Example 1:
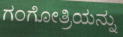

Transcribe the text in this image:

ಗಂಗೋತ್ರಿಯನ್ನು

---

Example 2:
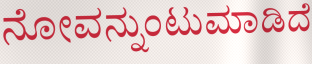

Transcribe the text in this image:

ನೋವನ್ನುಂಟುಮಾಡಿದೆ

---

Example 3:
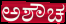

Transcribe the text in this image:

ಅಶೌಚ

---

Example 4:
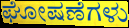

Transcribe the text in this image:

ಘೋಷಣೆಗಳು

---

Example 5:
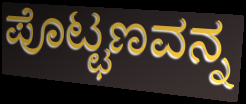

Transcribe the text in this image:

ಪೊಟ್ಟಣವನ್ನ